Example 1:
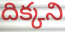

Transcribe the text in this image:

దిక్కని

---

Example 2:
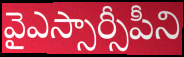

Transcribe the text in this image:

వైఎస్సార్సీపీని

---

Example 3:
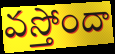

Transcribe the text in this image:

వస్తోందా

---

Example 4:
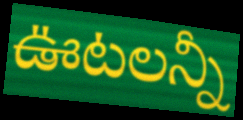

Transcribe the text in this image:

ఊటలన్నీ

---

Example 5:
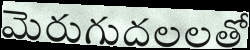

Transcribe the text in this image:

మెరుగుదలలతో